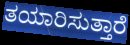
ತಯಾರಿಸುತ್ತಾರೆ